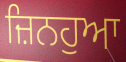
ਜ਼ਿਨਹੁਆ